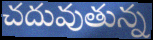
చదువుతున్న